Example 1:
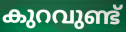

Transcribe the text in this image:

കുറവുണ്ട്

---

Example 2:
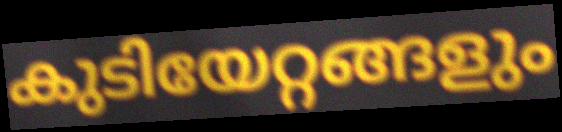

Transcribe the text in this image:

കുടിയേറ്റങ്ങളും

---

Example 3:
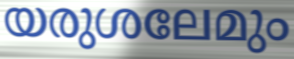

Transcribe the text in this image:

യരുശലേമും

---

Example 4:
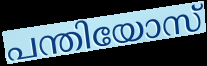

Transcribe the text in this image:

പന്തിയോസ്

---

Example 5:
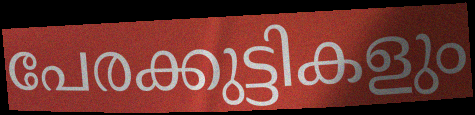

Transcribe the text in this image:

പേരക്കുട്ടികളും